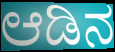
ಆಡಿನ